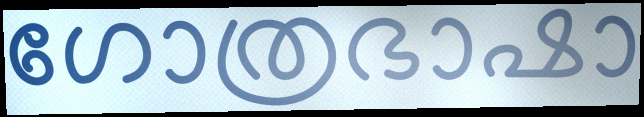
ഗോത്രഭാഷാ